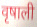
वृषाली